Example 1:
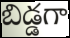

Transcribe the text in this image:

బిడ్డగా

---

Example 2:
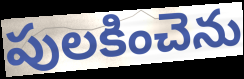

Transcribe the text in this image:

పులకించెను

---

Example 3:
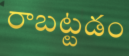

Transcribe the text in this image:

రాబట్టడం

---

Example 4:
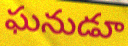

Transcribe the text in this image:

ఘనుడూ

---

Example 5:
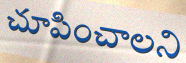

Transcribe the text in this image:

చూపించాలని